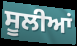
ਸੂਲੀਆਂ